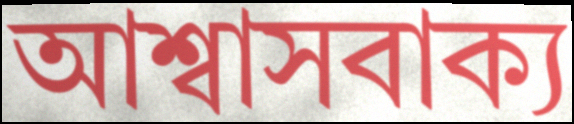
আশ্বাসবাক্য